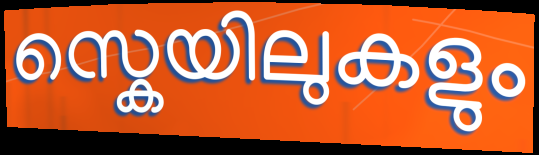
സ്കെയിലുകളും